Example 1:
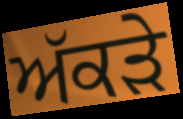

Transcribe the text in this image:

ਅੱਕੜੇ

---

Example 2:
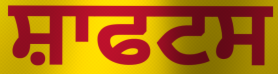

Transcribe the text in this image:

ਸ਼ਾਫਟਸ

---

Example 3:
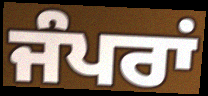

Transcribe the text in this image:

ਜੰਪਰਾਂ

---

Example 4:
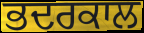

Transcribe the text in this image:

ਭਦਰਕਾਲ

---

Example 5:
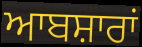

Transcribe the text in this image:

ਆਬਸ਼ਾਰਾਂ